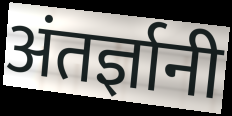
अंतर्ज्ञानी